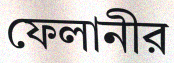
ফেলানীর